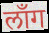
लाँग